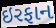
ઇરફાન